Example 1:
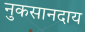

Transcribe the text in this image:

नुकसानदाय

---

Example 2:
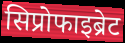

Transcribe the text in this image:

सिप्रोफाइब्रेट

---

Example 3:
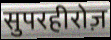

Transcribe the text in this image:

सुपरहीरोज़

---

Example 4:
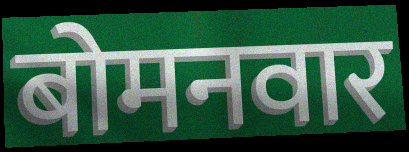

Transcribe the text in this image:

बोमनवार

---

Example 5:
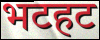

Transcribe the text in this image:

भटहट